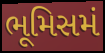
ભૂમિસમં